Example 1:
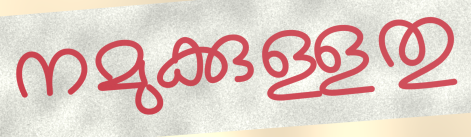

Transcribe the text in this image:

നമുക്കുള്ളതു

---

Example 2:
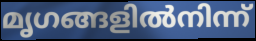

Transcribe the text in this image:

മൃഗങ്ങളിൽനിന്ന്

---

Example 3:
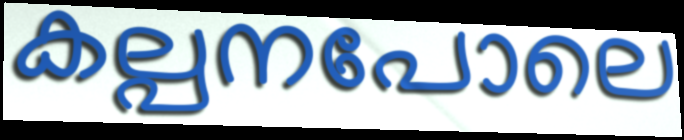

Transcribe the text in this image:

കല്പനപോലെ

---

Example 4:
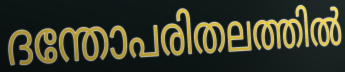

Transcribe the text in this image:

ദന്തോപരിതലത്തിൽ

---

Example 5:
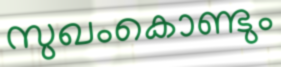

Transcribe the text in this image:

സുഖംകൊണ്ടും